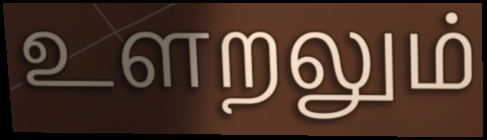
உளறலும்